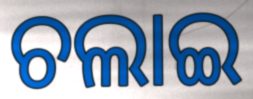
ଚଲାଇ